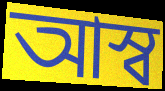
আস্ব